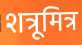
शत्रूमित्र